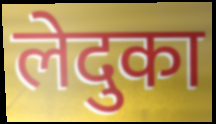
लेदुका